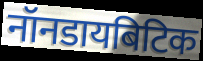
नॉनडायबिटिक